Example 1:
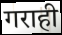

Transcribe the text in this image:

गराही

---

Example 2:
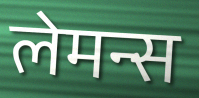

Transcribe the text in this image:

लेमन्स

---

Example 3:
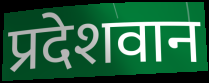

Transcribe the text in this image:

प्रदेशवान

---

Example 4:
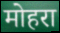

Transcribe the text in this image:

मोहरा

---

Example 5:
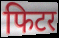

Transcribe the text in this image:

फिटर